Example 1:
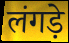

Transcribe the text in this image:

लंगड़े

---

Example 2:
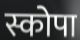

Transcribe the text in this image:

स्कोपा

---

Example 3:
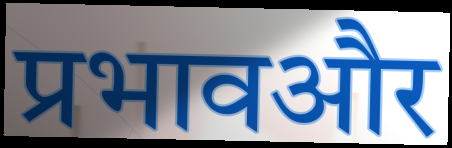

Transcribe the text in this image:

प्रभावऔर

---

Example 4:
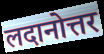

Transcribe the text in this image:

लदानोत्तर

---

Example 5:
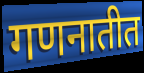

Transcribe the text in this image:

गणनातीत